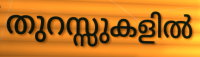
തുറസ്സുകളിൽ